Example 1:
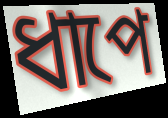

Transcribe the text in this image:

ধাপে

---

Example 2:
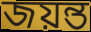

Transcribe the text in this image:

জয়ন্ত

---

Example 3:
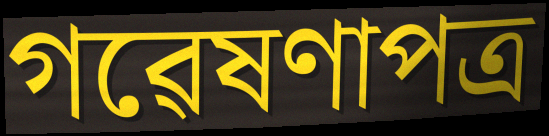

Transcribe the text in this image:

গৱেষণাপত্ৰ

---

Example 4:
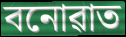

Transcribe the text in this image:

বনোৱাত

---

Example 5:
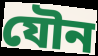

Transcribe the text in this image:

যৌন